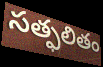
సత్ఫలితం